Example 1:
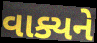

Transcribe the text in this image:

વાક્યને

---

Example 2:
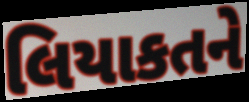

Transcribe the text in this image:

લિયાકતને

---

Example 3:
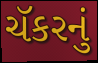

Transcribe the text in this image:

ચૅકરનું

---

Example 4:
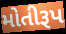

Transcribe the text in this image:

મોતીરૂપ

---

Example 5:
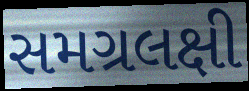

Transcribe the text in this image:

સમગ્રલક્ષી